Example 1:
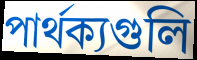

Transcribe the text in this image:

পার্থক্যগুলি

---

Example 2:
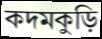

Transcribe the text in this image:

কদমকুড়ি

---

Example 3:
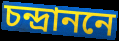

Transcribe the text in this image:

চন্দ্রাননে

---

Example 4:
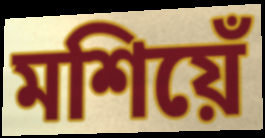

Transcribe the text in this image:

মশিয়েঁ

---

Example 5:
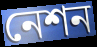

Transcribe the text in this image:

নেশন